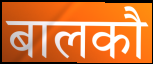
बालकौ